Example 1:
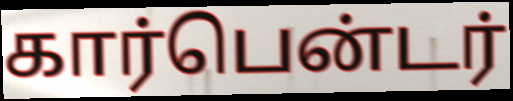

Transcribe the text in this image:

கார்பென்டர்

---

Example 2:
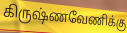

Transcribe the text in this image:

கிருஷ்ணவேணிக்கு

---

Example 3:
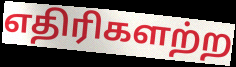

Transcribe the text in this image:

எதிரிகளற்ற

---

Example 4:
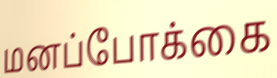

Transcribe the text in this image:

மனப்போக்கை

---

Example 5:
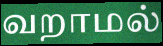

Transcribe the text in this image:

வறாமல்